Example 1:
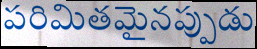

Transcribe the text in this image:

పరిమితమైనప్పుడు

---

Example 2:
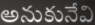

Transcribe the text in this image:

అనుకునేవి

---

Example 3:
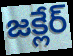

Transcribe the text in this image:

జక్లేర్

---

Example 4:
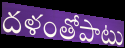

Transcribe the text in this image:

దళంతోపాటు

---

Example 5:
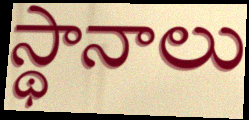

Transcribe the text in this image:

స్థానాలు